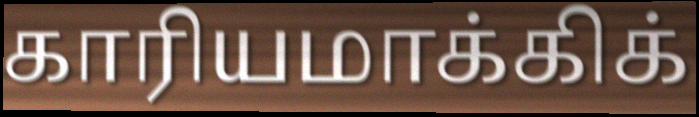
காரியமாக்கிக்